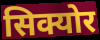
सिक्योर